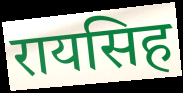
रायसिह